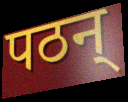
पठन्